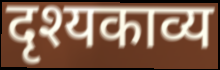
दृश्यकाव्य